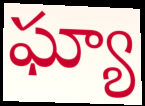
ఘ్యా